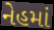
નેહમાં